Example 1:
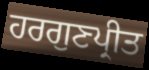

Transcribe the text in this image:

ਹਰਗੁਣਪ੍ਰੀਤ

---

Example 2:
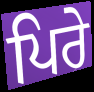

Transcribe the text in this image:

ਪਿਰੇ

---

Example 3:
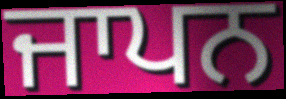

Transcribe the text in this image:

ਜਾਪਨ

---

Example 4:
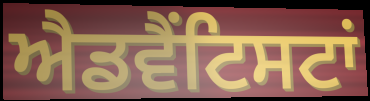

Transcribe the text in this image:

ਐਡਵੈਂਟਿਸਟਾਂ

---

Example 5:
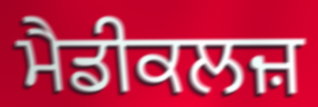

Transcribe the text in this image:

ਮੈਡੀਕਲਜ਼